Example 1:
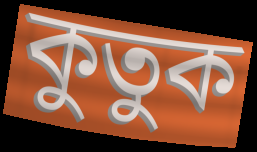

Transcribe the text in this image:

কুতুক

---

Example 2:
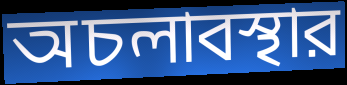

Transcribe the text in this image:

অচলাবস্থার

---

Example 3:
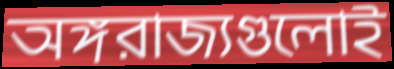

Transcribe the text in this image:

অঙ্গরাজ্যগুলোই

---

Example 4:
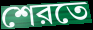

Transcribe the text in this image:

শেরতে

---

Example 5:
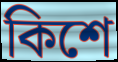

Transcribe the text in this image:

কিশে